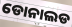
ଡୋନାଲଡ